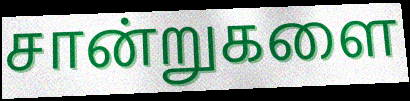
சான்றுகளை